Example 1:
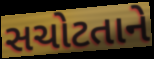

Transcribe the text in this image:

સચોટતાને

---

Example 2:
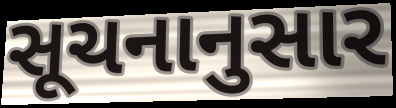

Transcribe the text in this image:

સૂચનાનુસાર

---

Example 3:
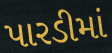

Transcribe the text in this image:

પારડીમાં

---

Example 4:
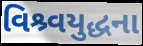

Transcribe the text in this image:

વિશ્ર્વયુદ્ધના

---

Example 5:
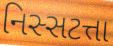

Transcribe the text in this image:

નિસ્સટત્તા